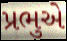
પ્રભુએ